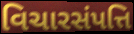
વિચારસંપત્તિ